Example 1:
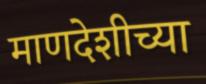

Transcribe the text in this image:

माणदेशीच्या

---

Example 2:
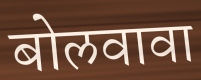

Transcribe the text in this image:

बोलवावा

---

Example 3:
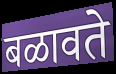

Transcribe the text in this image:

बळावते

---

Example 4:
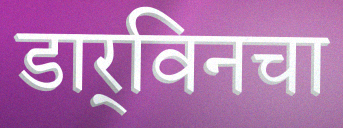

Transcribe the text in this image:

डार्विनचा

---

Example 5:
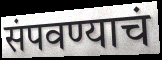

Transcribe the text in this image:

संपवण्याचं